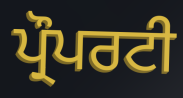
ਪ੍ਰੌਪਰਟੀ